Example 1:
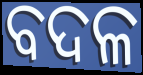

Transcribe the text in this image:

ବଦଳ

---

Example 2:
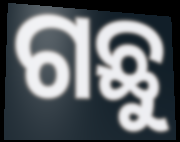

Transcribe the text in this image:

ଗଛୁ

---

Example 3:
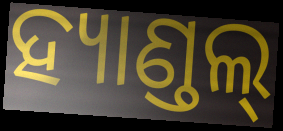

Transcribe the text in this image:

ହ୍ୟାଣ୍ଡଲ୍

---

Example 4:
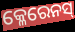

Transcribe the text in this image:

କ୍ଳେରେନସ୍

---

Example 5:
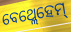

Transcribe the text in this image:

ବେଥ୍ଲେହେମ୍